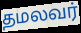
தமலவர்